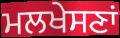
ਮਲਖੇਸਣਾਂ